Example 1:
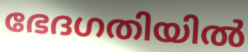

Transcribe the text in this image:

ഭേദഗതിയിൽ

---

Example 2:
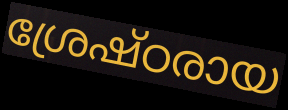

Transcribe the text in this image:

ശ്രേഷ്ഠരായ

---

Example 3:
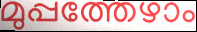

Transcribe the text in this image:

മുപ്പത്തേഴാം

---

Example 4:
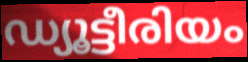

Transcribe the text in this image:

ഡ്യൂട്ടീരിയം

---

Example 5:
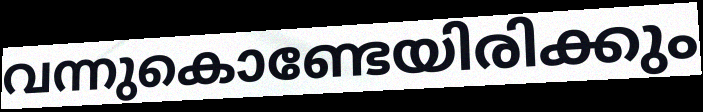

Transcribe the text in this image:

വന്നുകൊണ്ടേയിരിക്കും